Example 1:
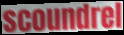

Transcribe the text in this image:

scoundrel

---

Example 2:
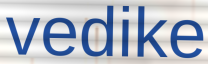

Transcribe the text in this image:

vedike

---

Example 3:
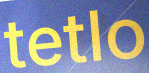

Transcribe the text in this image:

tetlo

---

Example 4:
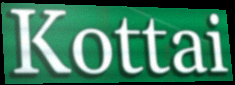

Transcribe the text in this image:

Kottai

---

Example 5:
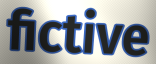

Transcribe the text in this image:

fictive